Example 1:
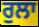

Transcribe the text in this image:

ਰੁਲਾ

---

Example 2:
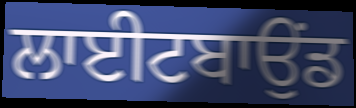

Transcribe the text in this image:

ਲਾਈਟਬਾਉਂਡ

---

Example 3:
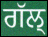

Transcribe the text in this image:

ਗੱਲ੍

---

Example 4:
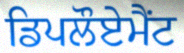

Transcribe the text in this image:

ਡਿਪਲੌਏਮੈਂਟ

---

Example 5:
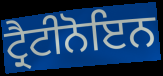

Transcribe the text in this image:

ਟ੍ਰੈਟੀਨੋਇਨ